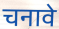
चनावे